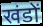
खंडों